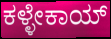
ಕಳ್ಳೇಕಾಯ್